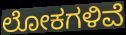
ಲೋಕಗಳಿವೆ